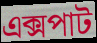
এক্সপাট